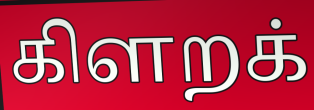
கிளறக்